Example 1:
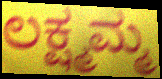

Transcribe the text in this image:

ಲಕ್ಷ್ಮಮ್ಮ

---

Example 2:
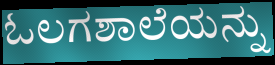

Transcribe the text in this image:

ಓಲಗಶಾಲೆಯನ್ನು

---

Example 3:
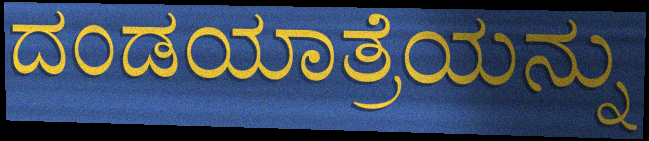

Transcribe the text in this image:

ದಂಡಯಾತ್ರೆಯನ್ನು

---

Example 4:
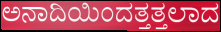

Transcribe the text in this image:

ಅನಾದಿಯಿಂದತ್ತತ್ತಲಾದ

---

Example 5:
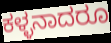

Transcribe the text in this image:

ಕಳ್ಳನಾದರೂ